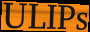
ULIPs